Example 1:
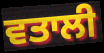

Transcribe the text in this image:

ਵਤਾਲੀ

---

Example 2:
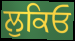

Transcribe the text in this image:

ਲੁਕਿਓ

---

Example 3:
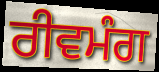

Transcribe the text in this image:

ਰੀਵਮੰਗ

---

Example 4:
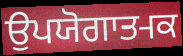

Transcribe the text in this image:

ਉਪਯੋਗਾਤ੍ਮਕ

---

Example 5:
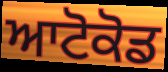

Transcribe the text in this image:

ਆਟੋਕੋਡ